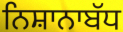
ਨਿਸ਼ਾਨਾਬੱਧ